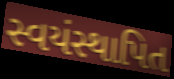
સ્વયંસ્થાપિત